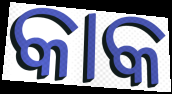
କାକ